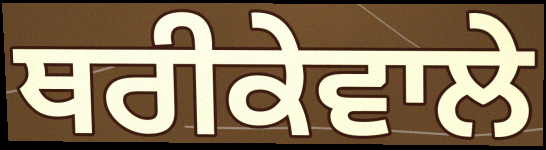
ਥਰੀਕੇਵਾਲੇ